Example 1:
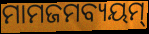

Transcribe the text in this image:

ମାମଜମବ୍ୟୟମ୍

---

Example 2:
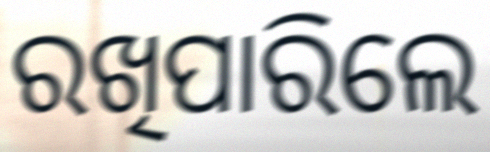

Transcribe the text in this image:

ରଖିପାରିଲେ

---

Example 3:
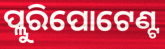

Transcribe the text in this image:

ପ୍ଲୁରିପୋଟେଣ୍ଟ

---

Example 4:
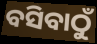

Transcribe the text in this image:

ବସିବାଠୁଁ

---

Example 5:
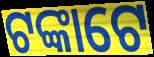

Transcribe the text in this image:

ଟଙ୍କାଟେ